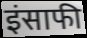
इंसाफी